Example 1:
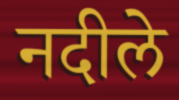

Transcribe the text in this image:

नदीले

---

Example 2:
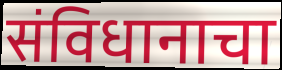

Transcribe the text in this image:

संविधानाचा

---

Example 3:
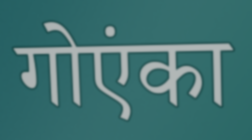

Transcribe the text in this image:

गोएंका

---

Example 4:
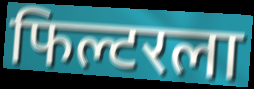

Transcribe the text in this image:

फिल्टरला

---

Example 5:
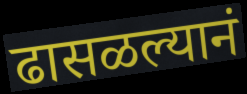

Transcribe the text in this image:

ढासळल्यानं